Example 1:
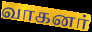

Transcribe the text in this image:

வாகனர்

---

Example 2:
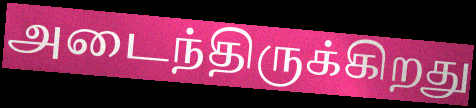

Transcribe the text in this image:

அடைந்திருக்கிறது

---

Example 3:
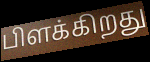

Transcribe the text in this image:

பிளக்கிறது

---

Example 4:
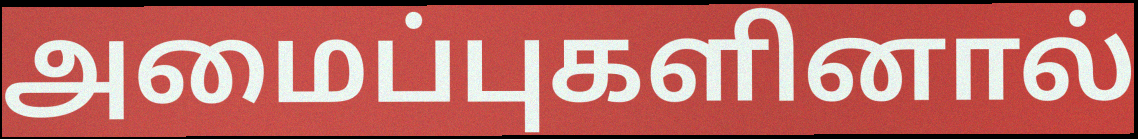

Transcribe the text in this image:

அமைப்புகளினால்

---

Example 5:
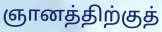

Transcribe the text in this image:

ஞானத்திற்குத்